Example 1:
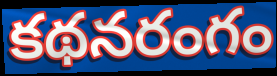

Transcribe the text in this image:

కథనరంగం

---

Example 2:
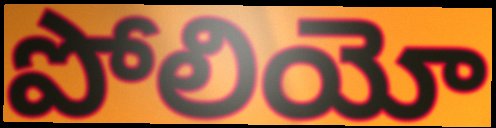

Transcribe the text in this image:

పోలియో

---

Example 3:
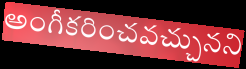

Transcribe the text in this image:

అంగీకరించవచ్చునని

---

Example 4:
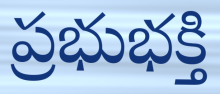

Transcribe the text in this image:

ప్రభుభక్తి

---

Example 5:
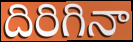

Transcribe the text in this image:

దిరిగినా